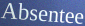
Absentee